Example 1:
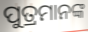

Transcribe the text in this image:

ପୁତ୍ରମାନଙ୍କ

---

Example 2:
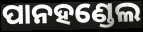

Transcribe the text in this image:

ପାନହଣ୍ଡେଲ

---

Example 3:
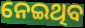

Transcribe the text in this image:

ନେଇଥିବ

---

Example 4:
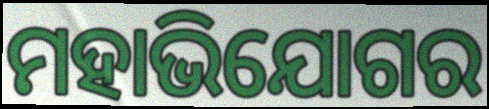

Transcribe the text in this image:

ମହାଭିଯୋଗର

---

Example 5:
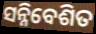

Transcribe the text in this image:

ସନ୍ନିବେଶିତ